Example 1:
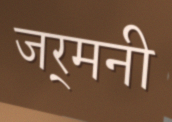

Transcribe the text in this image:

जर्मनी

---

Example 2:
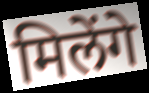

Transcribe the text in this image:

मिलेंगे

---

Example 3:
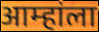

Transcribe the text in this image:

आम्हांला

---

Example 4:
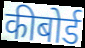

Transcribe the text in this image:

कीबोर्ड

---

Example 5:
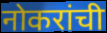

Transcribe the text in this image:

नोकरांची